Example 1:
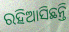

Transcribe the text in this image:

ରହିଆସିଛନ୍ତି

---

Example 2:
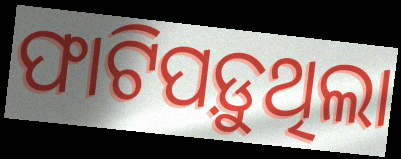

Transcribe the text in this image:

ଫାଟିପଡ଼ୁଥିଲା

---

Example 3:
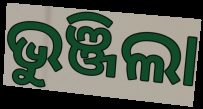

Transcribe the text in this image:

ଭୁଞ୍ଜିଲା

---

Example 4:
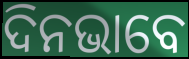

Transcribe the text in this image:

ଦିନଭାବେ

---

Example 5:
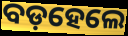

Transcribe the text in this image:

ବଡ଼ହେଲେ